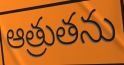
ఆత్రుతను